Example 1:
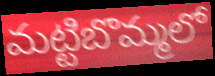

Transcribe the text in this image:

మట్టిబొమ్మలో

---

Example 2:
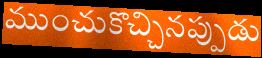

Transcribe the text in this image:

ముంచుకొచ్చినప్పుడు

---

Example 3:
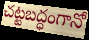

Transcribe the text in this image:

చట్టబద్ధంగానో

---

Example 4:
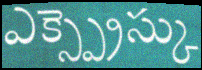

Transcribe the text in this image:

ఎక్స్ప్రెస్కు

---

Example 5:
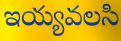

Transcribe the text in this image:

ఇయ్యవలసి